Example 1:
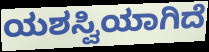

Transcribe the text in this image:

ಯಶಸ್ವಿಯಾಗಿದೆ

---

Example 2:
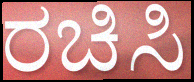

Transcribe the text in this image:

ರಚಿಸಿ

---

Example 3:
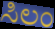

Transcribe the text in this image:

ಸಿಲಂ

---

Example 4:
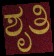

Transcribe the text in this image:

ಶೃತಿ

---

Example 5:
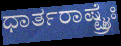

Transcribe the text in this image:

ಧಾರ್ತರಾಷ್ಟ್ರೈಃ